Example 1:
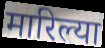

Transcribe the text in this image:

मारिल्या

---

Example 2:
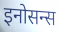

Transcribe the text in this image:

इनोसन्स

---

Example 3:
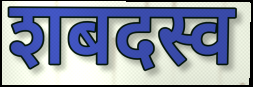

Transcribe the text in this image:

शबदस्व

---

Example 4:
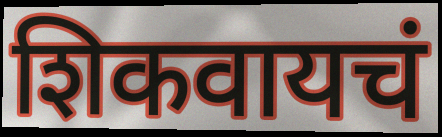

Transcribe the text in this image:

शिकवायचं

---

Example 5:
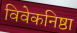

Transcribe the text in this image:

विवेकनिष्ठा